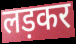
लड़कर